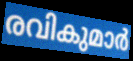
രവികുമാർ